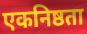
एकनिष्ठता